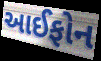
આઈફોન